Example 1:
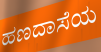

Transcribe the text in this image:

ಹಣದಾಸೆಯ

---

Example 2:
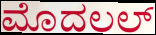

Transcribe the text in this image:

ಮೊದಲಲ್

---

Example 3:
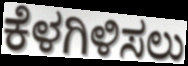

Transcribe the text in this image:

ಕೆಳಗಿಳಿಸಲು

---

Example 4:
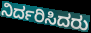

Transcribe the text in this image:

ನಿರ್ದರಿಸಿದರು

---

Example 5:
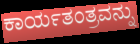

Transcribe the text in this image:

ಕಾರ್ಯತಂತ್ರವನ್ನು